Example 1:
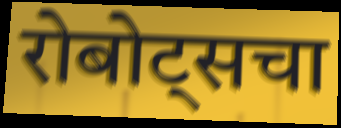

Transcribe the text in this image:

रोबोट्सचा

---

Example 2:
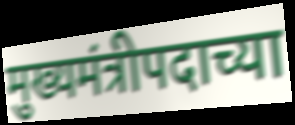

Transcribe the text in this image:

मुख्यमंत्रीपदाच्या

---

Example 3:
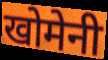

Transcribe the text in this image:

खोमेनी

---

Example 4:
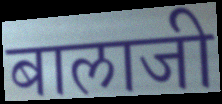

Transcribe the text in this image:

बालाजी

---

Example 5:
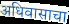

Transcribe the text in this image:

अधिवासाचा